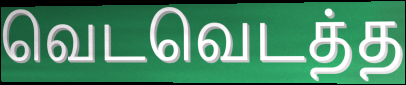
வெடவெடத்த